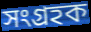
সংগ্ৰহক